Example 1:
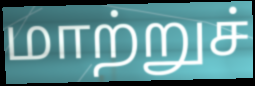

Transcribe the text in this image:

மாற்றுச்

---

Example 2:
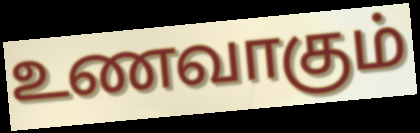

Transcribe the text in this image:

உணவாகும்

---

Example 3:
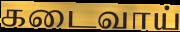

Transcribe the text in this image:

கடைவாய்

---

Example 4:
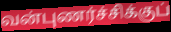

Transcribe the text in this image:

வன்புணர்ச்சிக்குப்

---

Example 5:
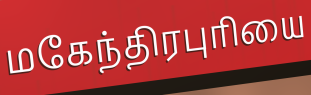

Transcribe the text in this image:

மகேந்திரபுரியை